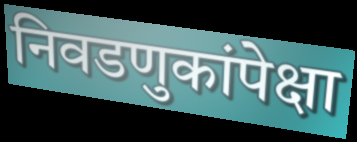
निवडणुकांपेक्षा